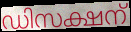
ഡിസക്ഷന്